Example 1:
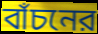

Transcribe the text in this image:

বাঁচনের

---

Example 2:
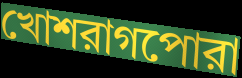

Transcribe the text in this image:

খোশরাগপোরা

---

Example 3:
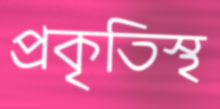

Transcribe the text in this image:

প্রকৃতিস্থ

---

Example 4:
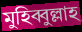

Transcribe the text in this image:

মুহিব্বুল্লাহ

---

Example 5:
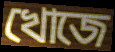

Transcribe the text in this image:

খোজে